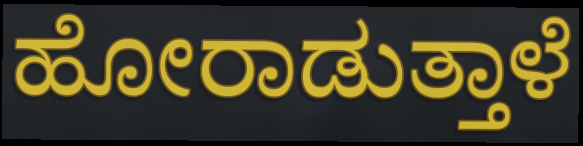
ಹೋರಾಡುತ್ತಾಳೆ